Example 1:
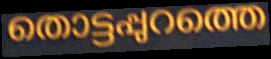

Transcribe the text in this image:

തൊട്ടപ്പുറത്തെ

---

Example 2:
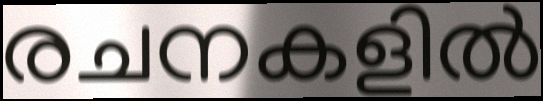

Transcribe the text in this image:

രചനകളിൽ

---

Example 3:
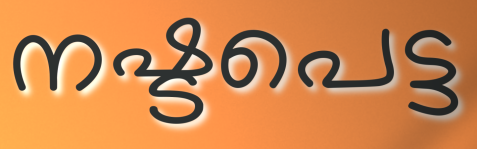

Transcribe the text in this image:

നഷ്ടപെട്ട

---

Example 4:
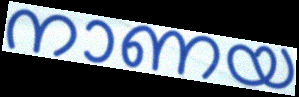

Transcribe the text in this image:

നാണയ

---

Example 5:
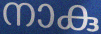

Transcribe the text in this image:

നാകു